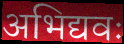
अभिद्यवः